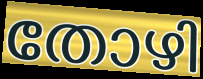
തോഴി